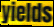
yields